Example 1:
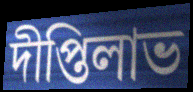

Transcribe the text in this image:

দীপ্তিলাভ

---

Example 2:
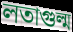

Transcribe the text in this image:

লতাগুল্ম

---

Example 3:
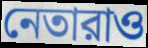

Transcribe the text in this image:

নেতারাও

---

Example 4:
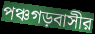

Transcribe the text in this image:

পঞ্চগড়বাসীর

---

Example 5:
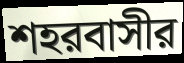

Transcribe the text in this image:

শহরবাসীর